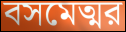
বসমেত্মর